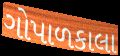
ગોપાળકાલા